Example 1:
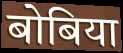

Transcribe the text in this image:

बोबिया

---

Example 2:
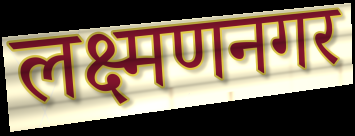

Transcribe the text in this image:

लक्ष्मणनगर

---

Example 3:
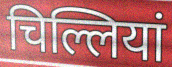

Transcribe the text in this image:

चिल्लियां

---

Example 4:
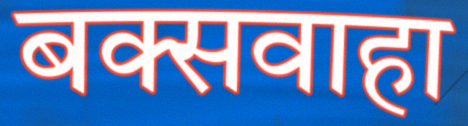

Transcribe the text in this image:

बक्सवाहा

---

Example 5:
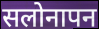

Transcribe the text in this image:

सलोनापन